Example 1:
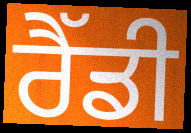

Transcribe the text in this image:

ਰੈੱਡੀ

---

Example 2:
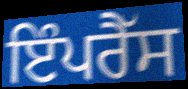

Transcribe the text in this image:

ਇੰਪਰੈੱਸ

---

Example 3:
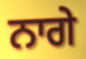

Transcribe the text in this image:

ਨਾਗੇ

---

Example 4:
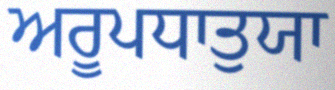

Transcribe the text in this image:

ਅਰੂਪਧਾਤੁਯਾ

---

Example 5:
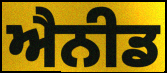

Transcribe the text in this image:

ਐਨੀਡ